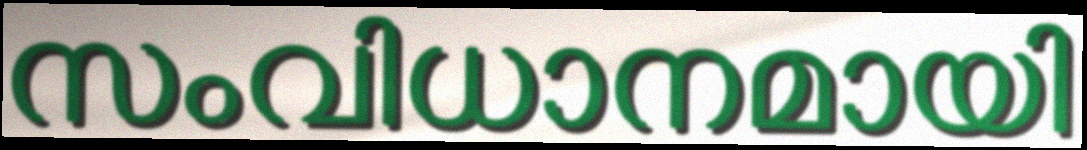
സംവിധാനമായി